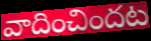
వాదించిందట